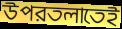
উপরতলাতেই